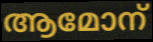
ആമോന്